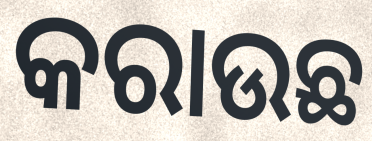
କରାଉଛ